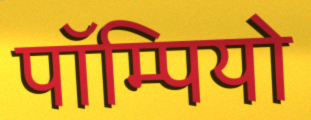
पॉम्पियो